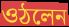
ওঠলেন